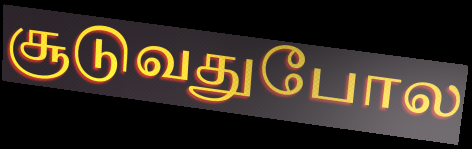
சூடுவதுபோல